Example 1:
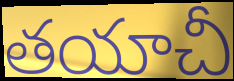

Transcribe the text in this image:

తయాచీ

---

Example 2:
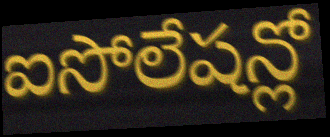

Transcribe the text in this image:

ఐసోలేషన్లో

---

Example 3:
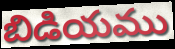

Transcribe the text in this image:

బిడియము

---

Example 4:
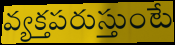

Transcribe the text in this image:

వ్యక్తపరుస్తుంటే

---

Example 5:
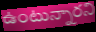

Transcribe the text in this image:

ఉంటున్నారని